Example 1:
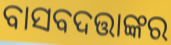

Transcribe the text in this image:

ବାସବଦତ୍ତାଙ୍କର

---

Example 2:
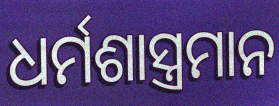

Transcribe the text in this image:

ଧର୍ମଶାସ୍ତ୍ରମାନ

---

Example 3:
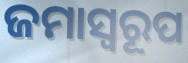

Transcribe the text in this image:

ଜମାସ୍ବରୂପ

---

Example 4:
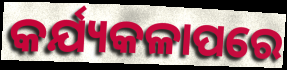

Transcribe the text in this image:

କର୍ଯ୍ୟକଳାପରେ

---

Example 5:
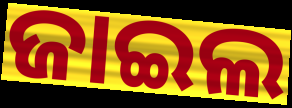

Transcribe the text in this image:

ଜାଇଲ